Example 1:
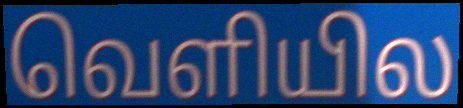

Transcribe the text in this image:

வெளியில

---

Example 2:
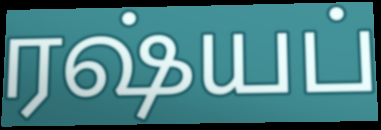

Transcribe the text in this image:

ரஷ்யப்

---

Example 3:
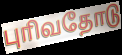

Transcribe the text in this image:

புரிவதோடு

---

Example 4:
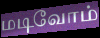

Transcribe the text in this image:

மடிவோம்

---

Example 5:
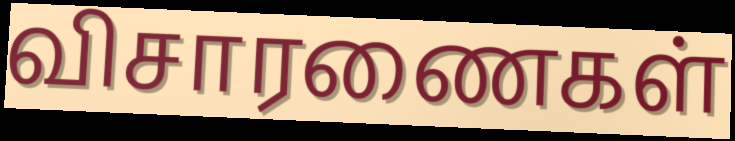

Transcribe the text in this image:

விசாரணைகள்